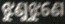
ଝୁଣୁଝୁଣେ